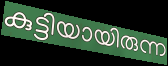
കുട്ടിയായിരുന്ന